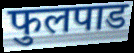
फुलपाड